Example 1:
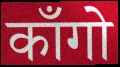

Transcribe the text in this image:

काँगो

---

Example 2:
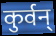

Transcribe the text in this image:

कुर्वन्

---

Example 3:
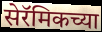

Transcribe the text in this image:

सेरॅमिकच्या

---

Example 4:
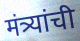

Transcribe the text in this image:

मंत्र्यांची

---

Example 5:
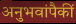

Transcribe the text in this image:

अनुभवांपैकीं